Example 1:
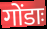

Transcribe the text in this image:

गोंडाः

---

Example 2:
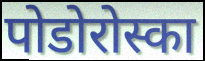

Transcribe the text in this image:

पोडोरोस्का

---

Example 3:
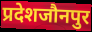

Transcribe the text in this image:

प्रदेशजौनपुर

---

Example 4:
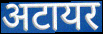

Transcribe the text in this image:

अटायर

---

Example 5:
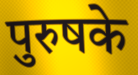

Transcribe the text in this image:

पुरुषके